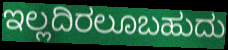
ಇಲ್ಲದಿರಲೂಬಹುದು